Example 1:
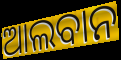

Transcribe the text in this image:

ଆଲବାନ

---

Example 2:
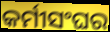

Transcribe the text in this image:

କର୍ମୀସଂଘର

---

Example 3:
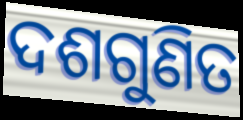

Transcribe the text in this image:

ଦଶଗୁଣିତ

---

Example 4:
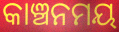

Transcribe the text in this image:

କାଞ୍ଚନମୟ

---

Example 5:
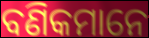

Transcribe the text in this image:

ବଣିକମାନେ